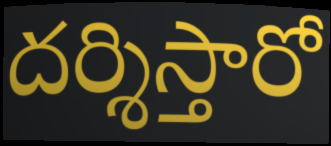
దర్శిస్తారో